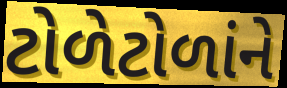
ટોળેટોળાંને